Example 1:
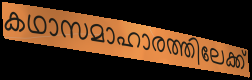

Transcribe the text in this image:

കഥാസമാഹാരത്തിലേക്ക്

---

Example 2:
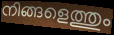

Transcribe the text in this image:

നിങ്ങളെത്തും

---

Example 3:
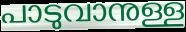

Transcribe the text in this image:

പാടുവാനുള്ള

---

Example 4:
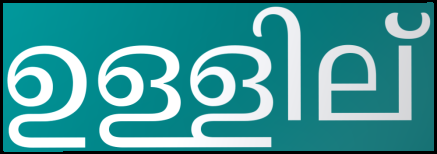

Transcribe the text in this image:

ഉള്ളില്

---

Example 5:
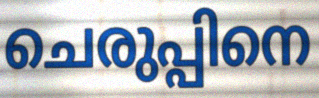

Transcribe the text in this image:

ചെരുപ്പിനെ